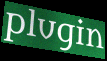
plugin